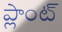
ప్లాంట్